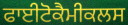
ਫਾਈਟੋਕੈਮੀਕਲਸ